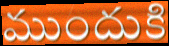
ముందుకి